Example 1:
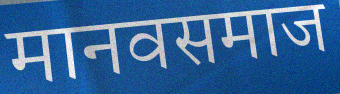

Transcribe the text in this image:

मानवसमाज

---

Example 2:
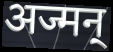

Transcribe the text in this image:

अज्मन्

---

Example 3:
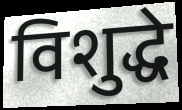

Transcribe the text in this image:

विशुद्धे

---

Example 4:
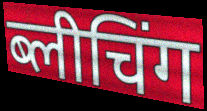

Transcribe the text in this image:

ब्लीचिंग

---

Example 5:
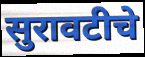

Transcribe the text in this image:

सुरावटीचे